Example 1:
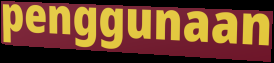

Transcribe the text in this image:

penggunaan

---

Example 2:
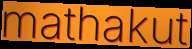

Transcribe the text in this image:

mathakut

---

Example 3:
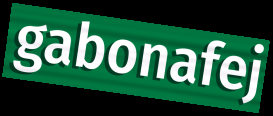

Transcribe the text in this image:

gabonafej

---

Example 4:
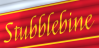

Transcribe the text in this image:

Stubblebine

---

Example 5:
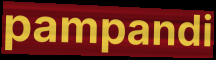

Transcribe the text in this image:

pampandi